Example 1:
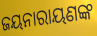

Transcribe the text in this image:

ଜୟନାରାୟଣଙ୍କ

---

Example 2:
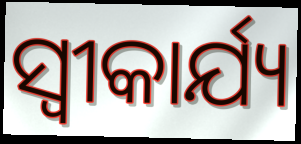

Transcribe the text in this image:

ସ୍ଵୀକାର୍ଯ୍ୟ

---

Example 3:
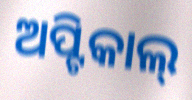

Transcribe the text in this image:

ଅପ୍ଟିକାଲ୍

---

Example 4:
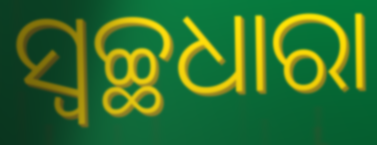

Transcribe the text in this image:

ସ୍ୱଚ୍ଛଧାରା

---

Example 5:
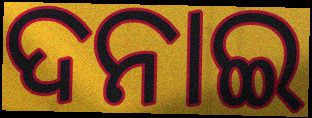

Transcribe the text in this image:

ଦନାଇ